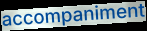
accompaniment